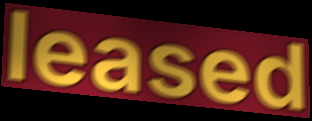
leased